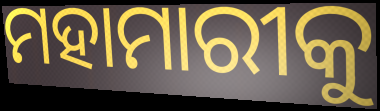
ମହାମାରୀକୁ